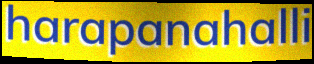
harapanahalli